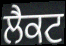
ਲੈਕਟ